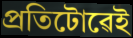
প্ৰতিটোৱেই